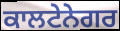
ਕਾਲਟੇਨੇਗਰ